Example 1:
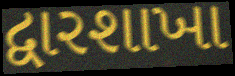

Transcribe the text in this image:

દ્વારશાખા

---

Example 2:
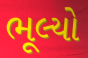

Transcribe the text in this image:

ભૂલ્‍યો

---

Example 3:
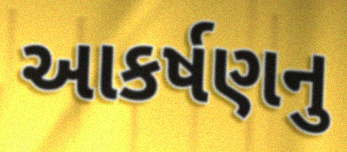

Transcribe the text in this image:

આકર્ષણનુ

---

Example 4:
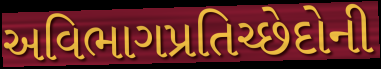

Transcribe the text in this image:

અવિભાગપ્રતિચ્છેદોની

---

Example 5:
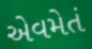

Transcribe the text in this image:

એવમેતં